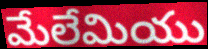
మేలేమియు